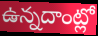
ఉన్నదాంట్లో